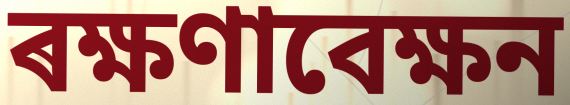
ৰক্ষণাবেক্ষন